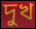
দুখ